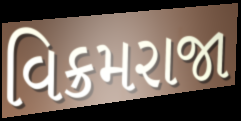
વિક્રમરાજા